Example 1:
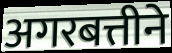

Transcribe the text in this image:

अगरबत्तीने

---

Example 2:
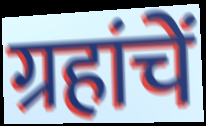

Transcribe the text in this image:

ग्रहांचें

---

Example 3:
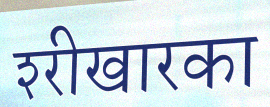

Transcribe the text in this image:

श्रीखारका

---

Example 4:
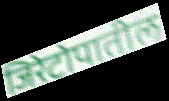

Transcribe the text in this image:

जिरेटोपातील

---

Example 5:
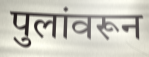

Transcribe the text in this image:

पुलांवरून